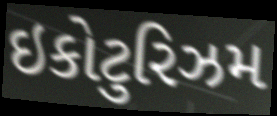
ઇકોટુરિઝમ